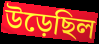
উড়েছিল